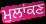
ਮੁਲਾਂਕਣ